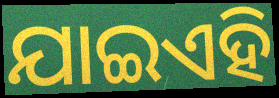
ଯାଇଏହି